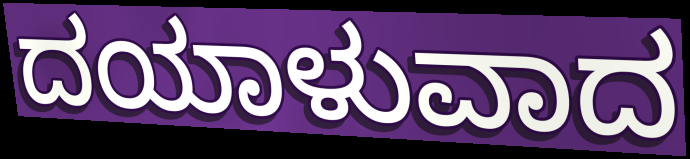
ದಯಾಳುವಾದ